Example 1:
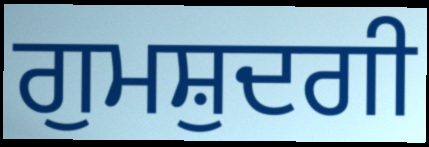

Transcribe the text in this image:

ਗੁਮਸ਼ੁਦਗੀ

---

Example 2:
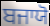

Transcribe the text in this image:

ਬਜਾਯੋ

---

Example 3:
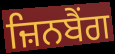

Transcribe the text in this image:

ਜ਼ਿਨਬੈਂਗ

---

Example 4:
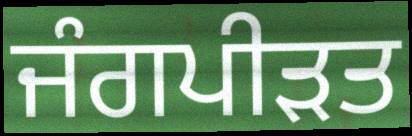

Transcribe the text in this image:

ਜੰਗਪੀੜਤ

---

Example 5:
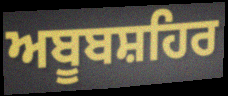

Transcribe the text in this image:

ਅਬੂਬਸ਼ਹਿਰ